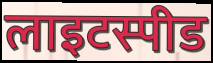
लाइटस्पीड